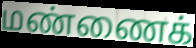
மண்ணைக்